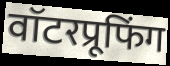
वॉटरप्रूफिंग